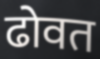
ढोवत